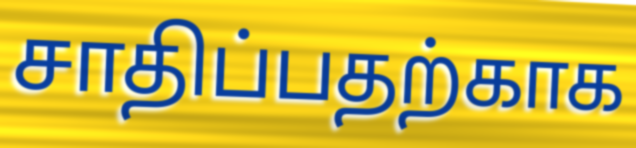
சாதிப்பதற்காக